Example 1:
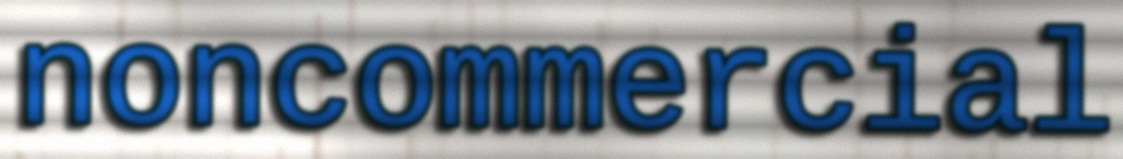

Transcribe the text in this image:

noncommercial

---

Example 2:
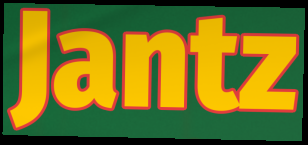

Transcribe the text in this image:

Jantz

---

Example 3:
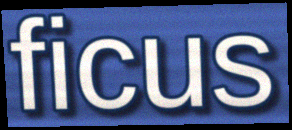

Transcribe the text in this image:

ficus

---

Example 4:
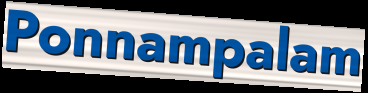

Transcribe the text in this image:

Ponnampalam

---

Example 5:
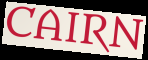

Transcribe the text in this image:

CAIRN